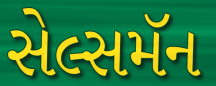
સેલ્સમૅન